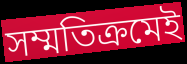
সম্মতিক্রমেই